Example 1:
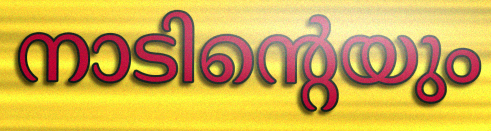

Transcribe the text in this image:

നാടിന്റെയും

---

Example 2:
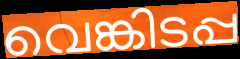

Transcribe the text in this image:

വെങ്കിടപ്പ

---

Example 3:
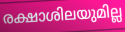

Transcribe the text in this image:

രക്ഷാശിലയുമില്ല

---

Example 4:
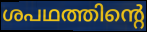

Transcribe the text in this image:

ശപഥത്തിന്റെ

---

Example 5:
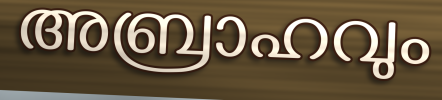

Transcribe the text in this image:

അബ്രാഹവും